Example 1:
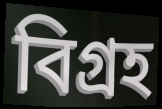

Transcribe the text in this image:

বিগ্ৰহ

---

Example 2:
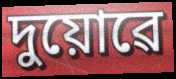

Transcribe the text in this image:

দুয়োৱে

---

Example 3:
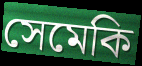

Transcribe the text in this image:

সেমেকি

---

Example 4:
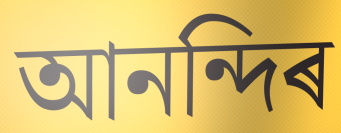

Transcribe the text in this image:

আনন্দিৰ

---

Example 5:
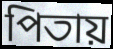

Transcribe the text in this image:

পিতায়